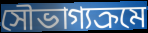
সৌভাগ্যক্ৰমে